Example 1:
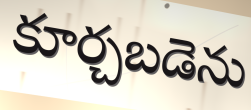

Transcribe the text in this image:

కూర్చబడెను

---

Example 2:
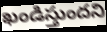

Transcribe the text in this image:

ఖండిస్తుందని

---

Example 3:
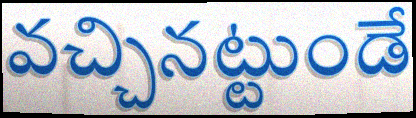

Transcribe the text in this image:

వచ్చినట్టుండే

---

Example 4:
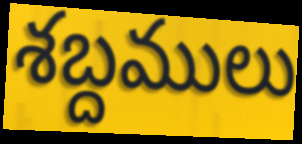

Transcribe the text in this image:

శబ్దములు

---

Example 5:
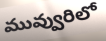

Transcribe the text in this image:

మువ్వురిలో